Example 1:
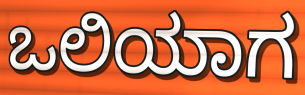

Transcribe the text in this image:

ಒಲಿಯಾಗ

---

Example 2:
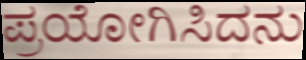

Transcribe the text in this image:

ಪ್ರಯೋಗಿಸಿದನು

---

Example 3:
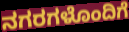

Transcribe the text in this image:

ನಗರಗಳೊಂದಿಗೆ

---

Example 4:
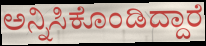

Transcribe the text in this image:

ಅನ್ನಿಸಿಕೊಂಡಿದ್ದಾರೆ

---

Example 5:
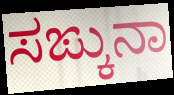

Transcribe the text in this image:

ಸಙ್ಕುನಾ